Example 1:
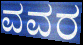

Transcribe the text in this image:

ವವರ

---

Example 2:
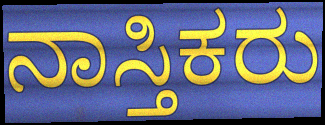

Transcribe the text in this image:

ನಾಸ್ತಿಕರು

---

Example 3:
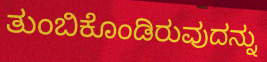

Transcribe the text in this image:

ತುಂಬಿಕೊಂಡಿರುವುದನ್ನು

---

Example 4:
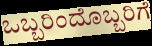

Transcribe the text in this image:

ಒಬ್ಬರಿಂದೊಬ್ಬರಿಗೆ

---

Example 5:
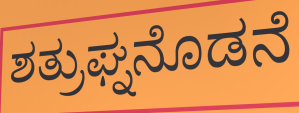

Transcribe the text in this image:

ಶತ್ರುಘ್ನನೊಡನೆ